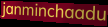
janminchaadu